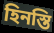
হিনস্তি